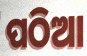
ପଠିଆ